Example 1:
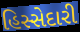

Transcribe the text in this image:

હિસ્સેદારી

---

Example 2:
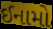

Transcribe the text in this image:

ઈનામો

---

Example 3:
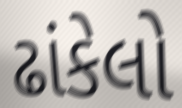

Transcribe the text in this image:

ઢાંકેલો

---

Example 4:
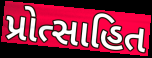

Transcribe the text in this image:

પ્રોત્સાહિત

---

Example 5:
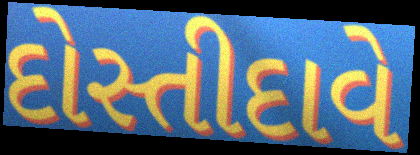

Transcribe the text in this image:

દોસ્તીદાવે